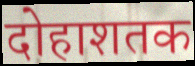
दोहाशतक